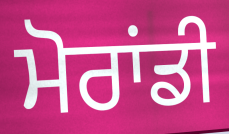
ਮੋਰਾਂਡੀ